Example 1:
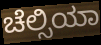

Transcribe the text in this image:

ಚೆಲ್ಸಿಯಾ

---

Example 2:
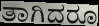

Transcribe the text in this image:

ತಾಗಿದರೂ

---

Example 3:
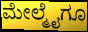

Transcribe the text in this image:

ಮೇಲ್ಮೈಗೂ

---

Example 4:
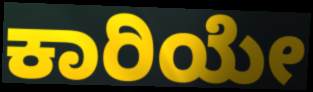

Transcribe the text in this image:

ಕಾರಿಯೇ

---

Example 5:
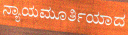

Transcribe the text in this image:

ನ್ಯಾಯಮೂರ್ತಿಯಾದ